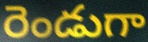
రెండుగా